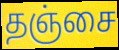
தஞ்சை